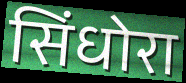
सिंधोरा